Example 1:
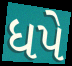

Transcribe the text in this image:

ધપે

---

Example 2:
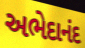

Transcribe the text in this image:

અભેદાનંદ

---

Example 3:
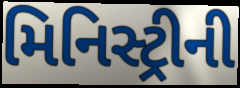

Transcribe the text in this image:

મિનિસ્ટ્રીની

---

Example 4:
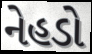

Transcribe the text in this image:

નેહડો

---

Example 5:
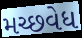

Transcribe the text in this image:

મચ્છવેધ